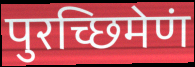
पुरच्छिमेणं